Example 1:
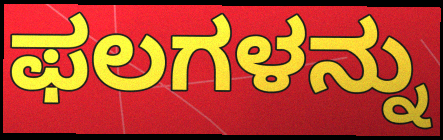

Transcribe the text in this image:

ಫಲಗಳನ್ನು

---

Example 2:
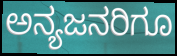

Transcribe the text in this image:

ಅನ್ಯಜನರಿಗೂ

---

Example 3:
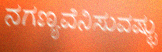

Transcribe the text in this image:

ನಗಣ್ಯವೆನಿಸುವಷ್ಟು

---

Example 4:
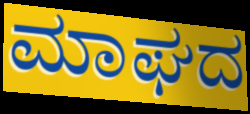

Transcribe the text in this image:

ಮಾಘದ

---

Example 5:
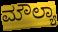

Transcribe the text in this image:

ಮೌಲ್ಯಾ